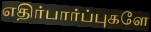
எதிர்பார்ப்புகளே